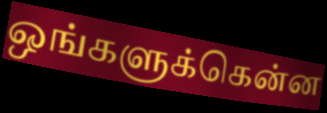
ஒங்களுக்கென்ன